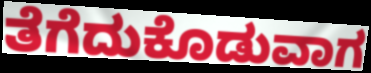
ತೆಗೆದುಕೊಡುವಾಗ